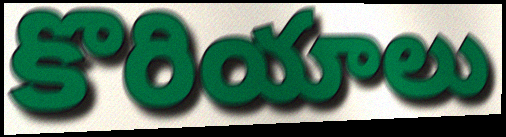
కొరియాలు